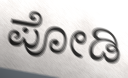
ಪೋಡಿ